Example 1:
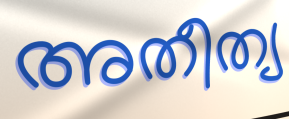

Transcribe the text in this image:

അതീത്യ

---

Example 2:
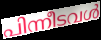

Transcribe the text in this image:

പിന്നീടവൾ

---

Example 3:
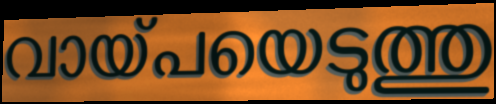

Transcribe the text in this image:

വായ്പയെടുത്തു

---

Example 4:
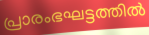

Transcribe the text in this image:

പ്രാരംഭഘട്ടത്തിൽ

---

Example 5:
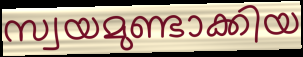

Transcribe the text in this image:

സ്വയമുണ്ടാക്കിയ